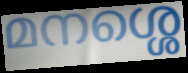
മനശ്ശെ